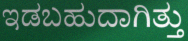
ಇಡಬಹುದಾಗಿತ್ತು